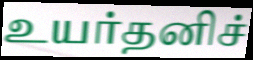
உயர்தனிச்